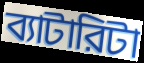
ব্যাটারিটা